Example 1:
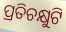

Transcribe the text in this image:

ପ୍ରତିଚକ୍ଷୁଟି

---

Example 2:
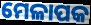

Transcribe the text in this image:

ମେଳାପକ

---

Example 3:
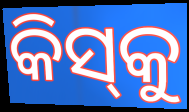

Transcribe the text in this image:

କିସ୍‌କୁ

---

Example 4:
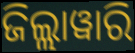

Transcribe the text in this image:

ଜିଲ୍ଲାୱାରି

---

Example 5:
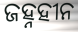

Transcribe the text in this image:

ଜହ୍ନହୀନ